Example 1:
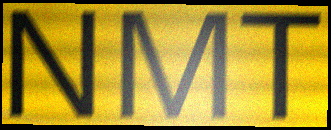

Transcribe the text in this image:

NMT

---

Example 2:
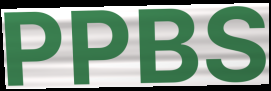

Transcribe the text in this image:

PPBS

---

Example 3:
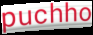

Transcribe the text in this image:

puchho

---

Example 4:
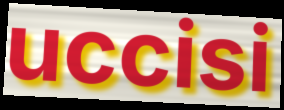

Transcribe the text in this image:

uccisi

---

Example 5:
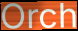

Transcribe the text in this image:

Orch